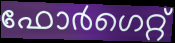
ഫോർഗെറ്റ്